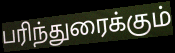
பரிந்துரைக்கும்